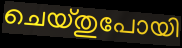
ചെയ്തുപോയി